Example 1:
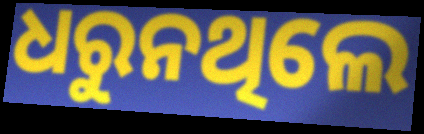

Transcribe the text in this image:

ଧରୁନଥିଲେ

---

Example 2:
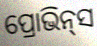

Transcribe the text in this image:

ପ୍ରୋଭିନ୍‌ସ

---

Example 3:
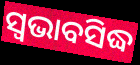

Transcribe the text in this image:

ସ୍ଵଭାବସିଦ୍ଧ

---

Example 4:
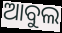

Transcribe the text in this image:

ଆବୁଲ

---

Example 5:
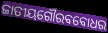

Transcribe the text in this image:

ଜାତୀୟଗୌରବବୋଧର